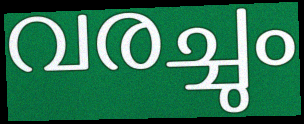
വരച്ചും